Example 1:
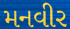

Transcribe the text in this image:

મનવીર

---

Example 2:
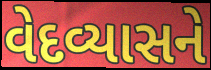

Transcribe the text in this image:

વેદવ્યાસને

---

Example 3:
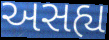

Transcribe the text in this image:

અસહ્ય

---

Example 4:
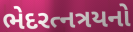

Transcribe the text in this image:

ભેદરત્નત્રયનો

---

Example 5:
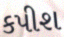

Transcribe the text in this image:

કપીશ